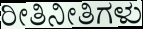
ರೀತಿನೀತಿಗಳು